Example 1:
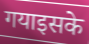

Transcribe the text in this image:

गयाइसके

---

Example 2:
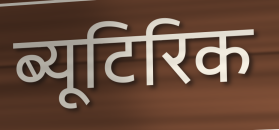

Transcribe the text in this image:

ब्यूटिरिक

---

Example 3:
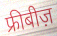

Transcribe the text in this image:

फ्रीबीज़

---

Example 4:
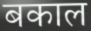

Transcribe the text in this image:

बकाल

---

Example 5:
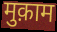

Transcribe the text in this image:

मुक़ाम